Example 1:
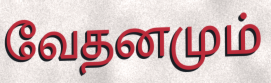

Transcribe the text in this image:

வேதனமும்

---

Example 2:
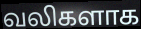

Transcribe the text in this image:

வலிகளாக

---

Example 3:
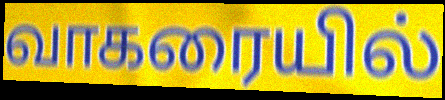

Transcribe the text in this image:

வாகரையில்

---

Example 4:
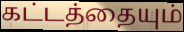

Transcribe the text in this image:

கட்டத்தையும்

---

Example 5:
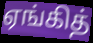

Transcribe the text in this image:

ஏங்கித்